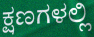
ಕ್ಷಣಗಳಲ್ಲಿ